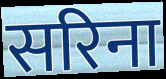
सरिना